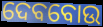
ଦେବବୋଉ